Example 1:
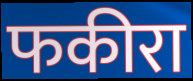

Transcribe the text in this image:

फकीरा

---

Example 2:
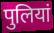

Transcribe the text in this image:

पुलियां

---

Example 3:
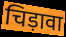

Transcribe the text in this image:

चिड़ावा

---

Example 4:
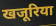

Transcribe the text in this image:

खजूरिया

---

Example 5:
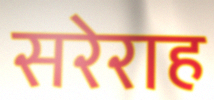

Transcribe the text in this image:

सरेराह